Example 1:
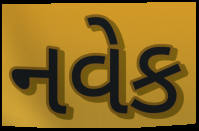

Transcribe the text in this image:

નવેક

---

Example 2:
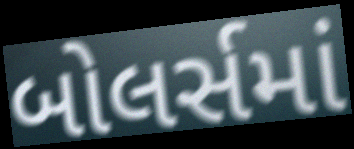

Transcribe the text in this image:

બોલર્સમાં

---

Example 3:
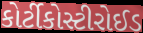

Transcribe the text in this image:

કોર્ટીકોસ્ટીરોઈડ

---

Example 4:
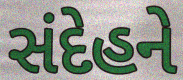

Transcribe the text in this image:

સંદેહને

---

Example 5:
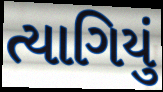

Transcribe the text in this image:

ત્યાગિયું